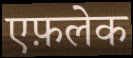
एफ़लेक